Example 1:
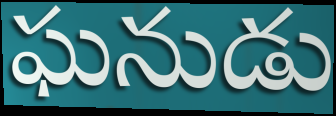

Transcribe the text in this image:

ఘనుడు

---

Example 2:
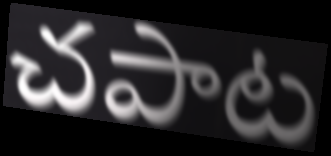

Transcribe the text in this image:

చపాట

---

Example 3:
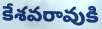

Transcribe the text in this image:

కేశవరావుకి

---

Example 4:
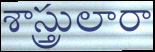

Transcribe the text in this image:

శాస్త్రులారా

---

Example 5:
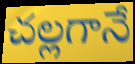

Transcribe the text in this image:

చల్లగానే